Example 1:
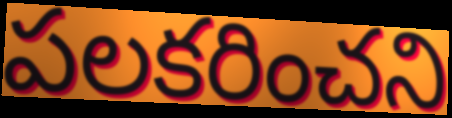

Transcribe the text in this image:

పలకరించని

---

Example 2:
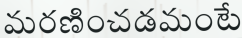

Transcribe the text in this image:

మరణించడమంటే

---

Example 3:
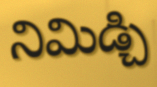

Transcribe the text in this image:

నిమిడ్చి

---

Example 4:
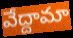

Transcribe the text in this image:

వేద్దామా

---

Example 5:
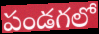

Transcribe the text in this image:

పండగలో